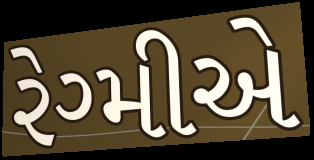
રેગ્મીએ